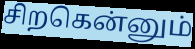
சிறகென்னும்